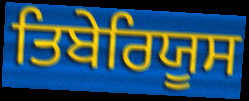
ਤਿਬੇਰਿਯੂਸ